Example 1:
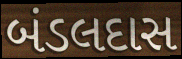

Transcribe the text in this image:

બંડલદાસ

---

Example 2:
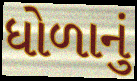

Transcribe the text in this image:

ધોળાનું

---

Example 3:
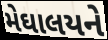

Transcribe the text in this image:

મેઘાલયને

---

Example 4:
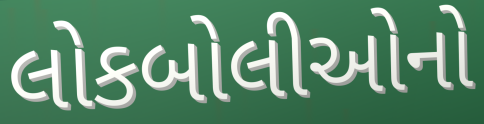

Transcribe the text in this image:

લોકબોલીઓનો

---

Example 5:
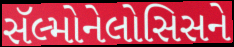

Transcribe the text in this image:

સૅલ્મોનેલોસિસને